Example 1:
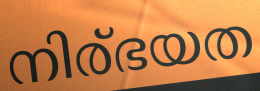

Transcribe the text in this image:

നിര്ഭയത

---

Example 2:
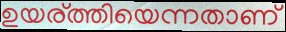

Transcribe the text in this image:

ഉയര്ത്തിയെന്നതാണ്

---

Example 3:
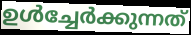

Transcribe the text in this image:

ഉൾച്ചേർക്കുന്നത്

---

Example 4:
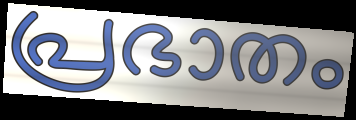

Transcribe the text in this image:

പ്രഭാതം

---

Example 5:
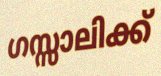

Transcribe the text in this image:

ഗസ്സാലിക്ക്